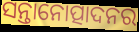
ସନ୍ତାନୋତ୍ପାଦନର